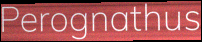
Perognathus